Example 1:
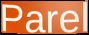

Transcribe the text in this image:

Parel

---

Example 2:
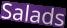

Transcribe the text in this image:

Salads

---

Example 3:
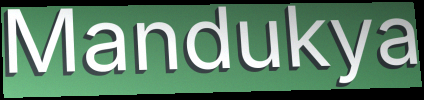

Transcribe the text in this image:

Mandukya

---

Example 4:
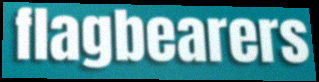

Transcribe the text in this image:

flagbearers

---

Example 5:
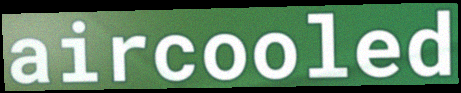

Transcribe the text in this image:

aircooled